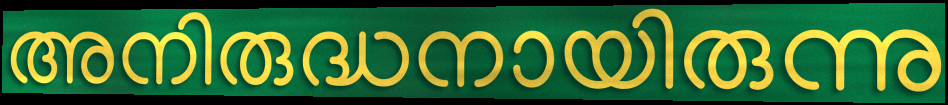
അനിരുദ്ധനായിരുന്നു